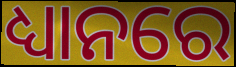
ଧ୍ୟାନରେ